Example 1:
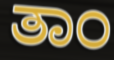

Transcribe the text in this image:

ತಾಂ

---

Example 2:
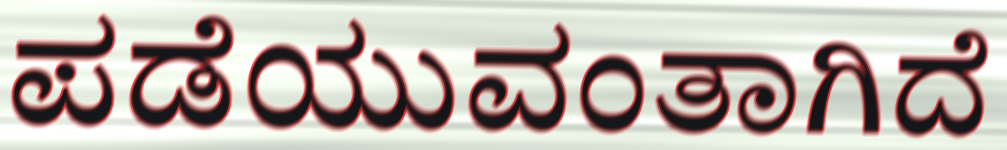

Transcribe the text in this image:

ಪಡೆಯುವಂತಾಗಿದೆ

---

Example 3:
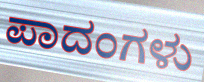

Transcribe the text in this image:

ಪಾದಂಗಳು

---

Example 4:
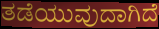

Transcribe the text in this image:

ತಡೆಯುವುದಾಗಿದೆ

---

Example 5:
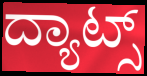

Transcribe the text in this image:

ದ್ಯಾಟ್ಸ್